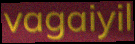
vagaiyil